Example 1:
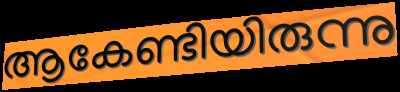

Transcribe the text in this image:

ആകേണ്ടിയിരുന്നു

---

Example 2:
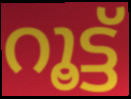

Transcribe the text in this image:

റൂട്ട്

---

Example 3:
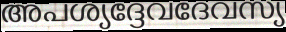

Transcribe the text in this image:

അപശ്യദ്ദേവദേവസ്യ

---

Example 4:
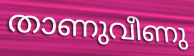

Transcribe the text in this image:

താണുവീണു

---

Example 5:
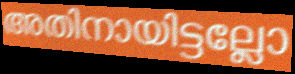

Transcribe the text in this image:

അതിനായിട്ടല്ലോ